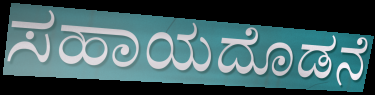
ಸಹಾಯದೊಡನೆ